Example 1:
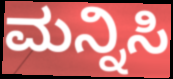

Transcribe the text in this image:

ಮನ್ನಿಸಿ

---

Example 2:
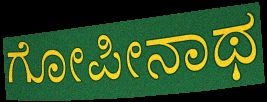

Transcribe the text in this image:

ಗೋಪೀನಾಥ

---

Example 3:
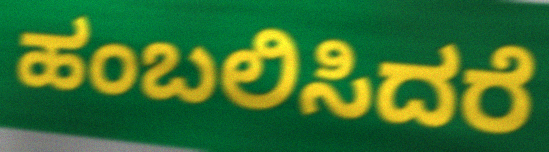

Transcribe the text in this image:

ಹಂಬಲಿಸಿದರೆ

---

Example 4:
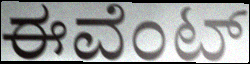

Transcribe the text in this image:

ಈವೆಂಟ್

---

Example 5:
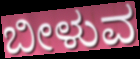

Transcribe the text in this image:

ಬೀಳುವ